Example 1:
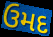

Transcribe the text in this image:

ઉમદ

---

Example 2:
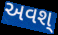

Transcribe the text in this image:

અવશ્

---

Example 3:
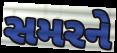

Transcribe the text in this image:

સમરને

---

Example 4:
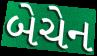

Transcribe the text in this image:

બેચેન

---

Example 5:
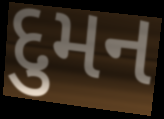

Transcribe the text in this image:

દુમન